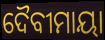
ଦୈବୀମାୟା